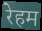
रेहम